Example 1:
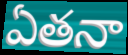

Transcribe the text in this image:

ఏతనా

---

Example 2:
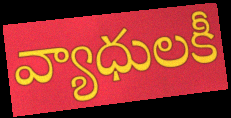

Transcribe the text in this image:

వ్యాధులకీ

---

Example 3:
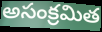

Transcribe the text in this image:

అసంక్రమిత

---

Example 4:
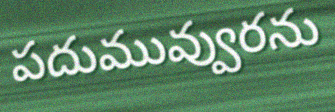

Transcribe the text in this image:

పదుమువ్వురను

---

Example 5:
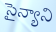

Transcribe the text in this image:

సైన్యాని